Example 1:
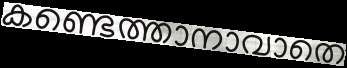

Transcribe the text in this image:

കണ്ടെത്താനാവാതെ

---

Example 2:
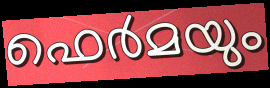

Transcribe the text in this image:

ഫെർമയും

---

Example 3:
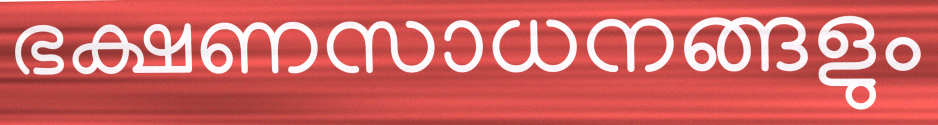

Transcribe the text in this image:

ഭക്ഷണസാധനങ്ങളും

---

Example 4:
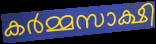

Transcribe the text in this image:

കർമ്മസാക്ഷി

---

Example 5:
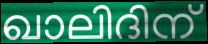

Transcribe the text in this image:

ഖാലിദിന്